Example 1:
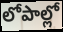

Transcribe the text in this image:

లోపాల్లో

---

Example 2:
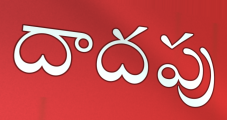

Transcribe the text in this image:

దాదపు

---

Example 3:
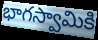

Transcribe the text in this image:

భాగస్వామికి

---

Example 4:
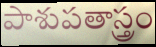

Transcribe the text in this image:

పాశుపతాస్త్రం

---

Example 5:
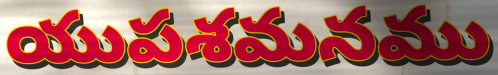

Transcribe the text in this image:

యుపశమనము